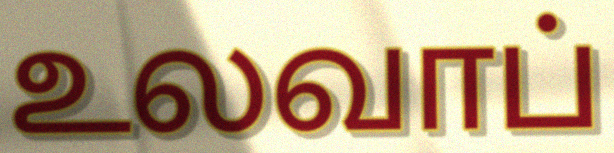
உலவாப்